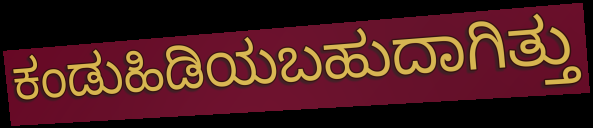
ಕಂಡುಹಿಡಿಯಬಹುದಾಗಿತ್ತು